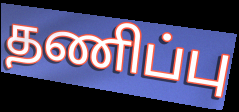
தணிப்பு